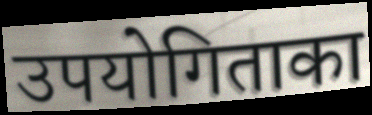
उपयोगिताका